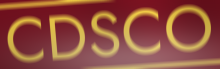
CDSCO